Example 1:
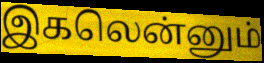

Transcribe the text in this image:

இகலென்னும்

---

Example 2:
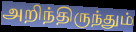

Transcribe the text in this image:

அறிந்திருந்தும்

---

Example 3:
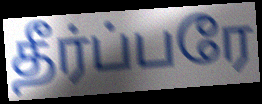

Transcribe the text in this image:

தீர்ப்பரே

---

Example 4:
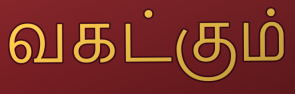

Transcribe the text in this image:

வகட்கும்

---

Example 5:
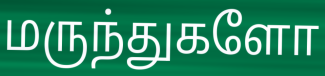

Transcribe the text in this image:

மருந்துகளோ